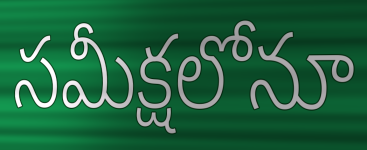
సమీక్షలోనూ